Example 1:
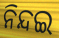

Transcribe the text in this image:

ନିନ୍ଦଇ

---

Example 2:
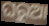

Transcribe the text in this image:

ଘରୁଆ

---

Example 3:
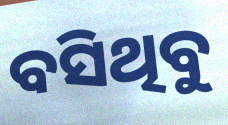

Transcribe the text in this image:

ବସିଥିବୁ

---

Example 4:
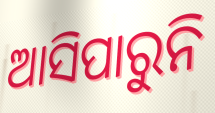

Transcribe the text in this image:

ଆସିପାରୁନି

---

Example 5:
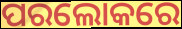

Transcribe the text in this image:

ପରଲୋକରେ